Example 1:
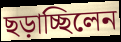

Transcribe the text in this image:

ছড়াচ্ছিলেন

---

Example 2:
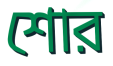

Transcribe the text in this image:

শোর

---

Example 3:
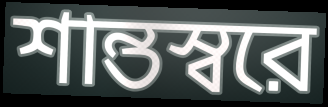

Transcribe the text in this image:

শান্তস্বরে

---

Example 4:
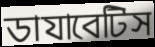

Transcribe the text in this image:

ডাযাবেটিস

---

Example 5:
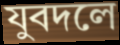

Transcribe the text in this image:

যুবদলে